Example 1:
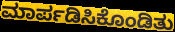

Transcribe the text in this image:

ಮಾರ್ಪಡಿಸಿಕೊಂಡಿತು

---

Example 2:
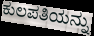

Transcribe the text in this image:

ಕುಲಪತಿಯನ್ನು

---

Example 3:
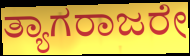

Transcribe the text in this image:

ತ್ಯಾಗರಾಜರೇ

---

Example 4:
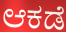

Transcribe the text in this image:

ಆಕಡೆ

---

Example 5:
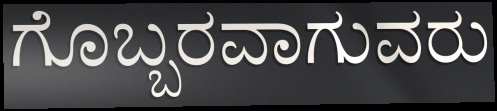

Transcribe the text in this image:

ಗೊಬ್ಬರವಾಗುವರು